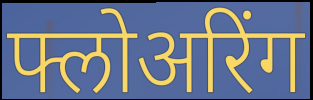
फ्लोअरिंग